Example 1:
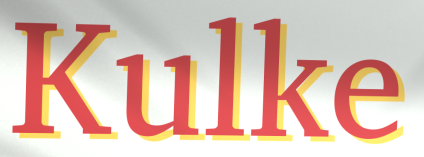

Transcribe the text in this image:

Kulke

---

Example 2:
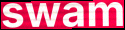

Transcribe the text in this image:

swam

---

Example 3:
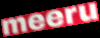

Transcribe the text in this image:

meeru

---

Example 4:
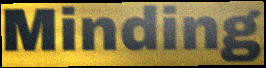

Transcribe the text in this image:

Minding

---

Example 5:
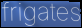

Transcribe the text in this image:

frigates